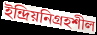
ইন্দ্রিয়নিগ্রহশীল